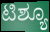
ಟಿಶ್ಯೂ